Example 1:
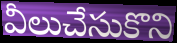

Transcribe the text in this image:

వీలుచేసుకొని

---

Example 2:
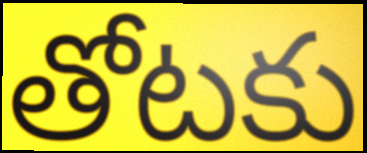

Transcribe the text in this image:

తోటకు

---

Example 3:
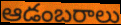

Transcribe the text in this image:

ఆడంబరాలు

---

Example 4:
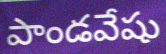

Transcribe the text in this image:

పాండవేషు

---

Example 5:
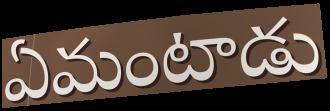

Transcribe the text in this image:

ఏమంటాడు